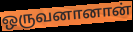
ஒருவனானான்